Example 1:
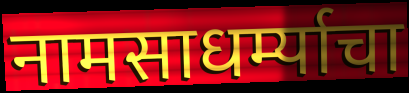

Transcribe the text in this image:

नामसाधर्म्याचा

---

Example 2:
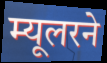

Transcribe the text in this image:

म्यूलरने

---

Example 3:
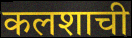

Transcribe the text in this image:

कलशाची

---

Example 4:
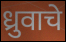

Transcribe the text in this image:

ध्रुवाचे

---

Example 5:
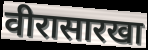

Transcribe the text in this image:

वीरासारखा